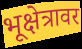
भूक्षेत्रावर